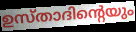
ഉസ്താദിന്റെയും